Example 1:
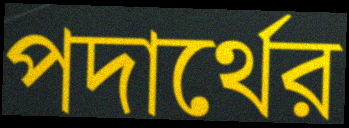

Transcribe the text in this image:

পদার্থের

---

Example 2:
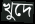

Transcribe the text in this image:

খুদে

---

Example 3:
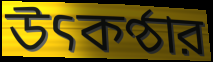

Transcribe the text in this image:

উৎকণ্ঠার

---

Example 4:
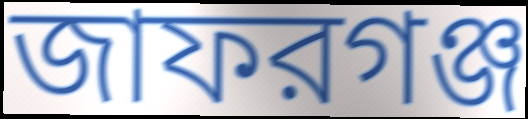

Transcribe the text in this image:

জাফরগঞ্জ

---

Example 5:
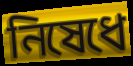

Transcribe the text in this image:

নিষেধে